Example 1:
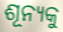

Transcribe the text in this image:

ଶୂନ୍ୟକୁ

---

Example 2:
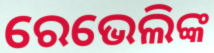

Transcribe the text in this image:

ରେଭେଲିଙ୍କ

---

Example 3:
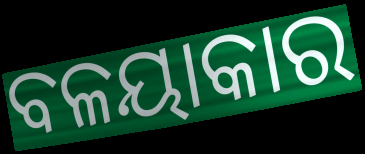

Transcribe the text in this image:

ବଳୟାକାର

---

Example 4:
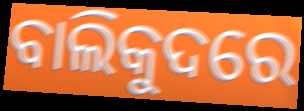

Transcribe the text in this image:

ବାଲିକୁଦରେ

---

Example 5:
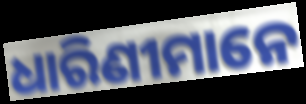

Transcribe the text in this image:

ଧାରିଣୀମାନେ